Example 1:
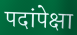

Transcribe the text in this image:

पदांपेक्षा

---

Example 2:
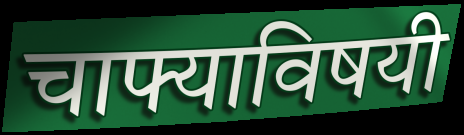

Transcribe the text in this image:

चाफ्याविषयी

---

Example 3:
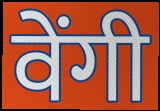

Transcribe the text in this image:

वेंगी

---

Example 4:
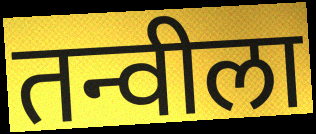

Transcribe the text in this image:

तन्वीला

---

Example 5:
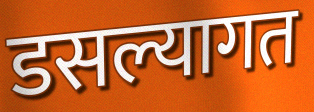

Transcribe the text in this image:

डसल्यागत